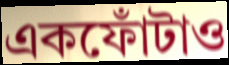
একফোঁটাও